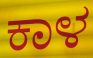
ಕಾಳ